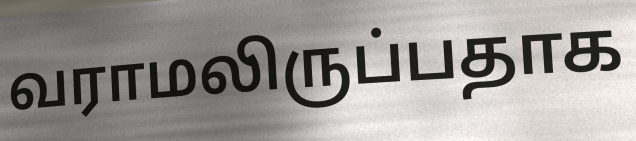
வராமலிருப்பதாக